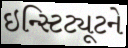
ઇન્સ્ટિટ્યૂટને